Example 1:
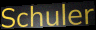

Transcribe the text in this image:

Schuler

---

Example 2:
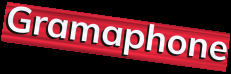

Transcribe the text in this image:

Gramaphone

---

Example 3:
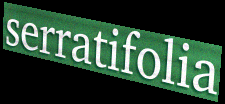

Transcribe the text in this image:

serratifolia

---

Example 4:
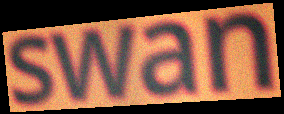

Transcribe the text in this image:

swan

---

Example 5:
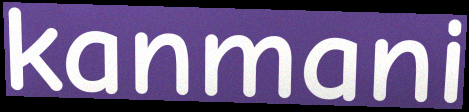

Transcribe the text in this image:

kanmani